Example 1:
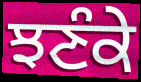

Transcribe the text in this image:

ਝਣੰਕੇ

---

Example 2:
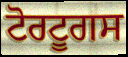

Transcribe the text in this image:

ਟੋਰਟੂਗਸ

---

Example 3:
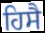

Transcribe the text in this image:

ਹਿਸੈ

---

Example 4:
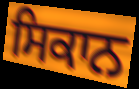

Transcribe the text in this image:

ਸਿਕਾਨ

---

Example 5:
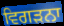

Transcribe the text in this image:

ਵਿਗੜਨਾ